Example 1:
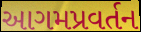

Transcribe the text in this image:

આગમપ્રવર્તન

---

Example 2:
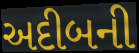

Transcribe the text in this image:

અદીબની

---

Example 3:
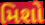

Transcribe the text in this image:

મિશો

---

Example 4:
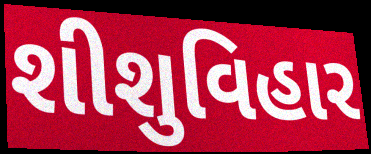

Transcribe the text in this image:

શીશુવિહાર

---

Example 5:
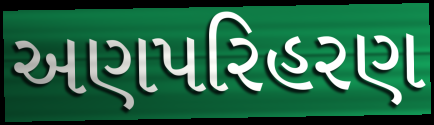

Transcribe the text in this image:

અણપરિહરણ